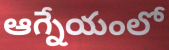
ఆగ్నేయంలో